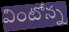
వింటోన్న